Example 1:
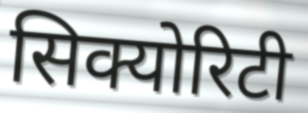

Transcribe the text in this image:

सिक्योरिटी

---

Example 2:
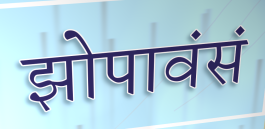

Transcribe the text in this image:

झोपावंसं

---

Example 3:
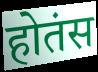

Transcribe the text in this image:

होतंस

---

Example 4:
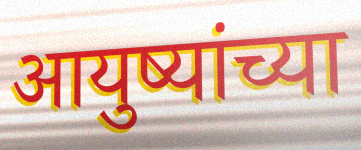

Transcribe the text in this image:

आयुष्यांच्या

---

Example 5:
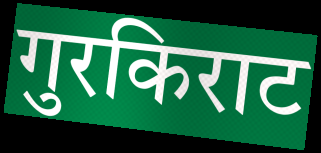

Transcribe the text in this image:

गुरकिराट